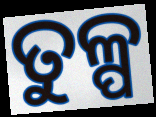
ତୁଳ୍ପ